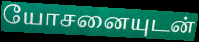
யோசனையுடன்